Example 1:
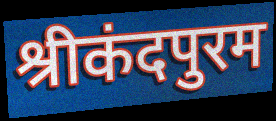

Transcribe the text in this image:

श्रीकंदपुरम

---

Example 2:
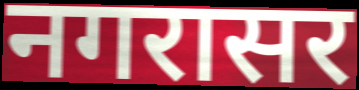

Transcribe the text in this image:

नगरासर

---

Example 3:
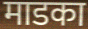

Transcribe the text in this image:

माडका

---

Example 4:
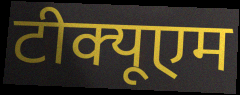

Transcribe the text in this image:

टीक्यूएम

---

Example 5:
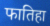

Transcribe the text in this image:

फातिहा